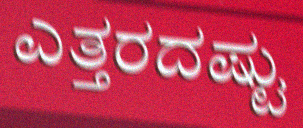
ಎತ್ತರದಷ್ಟು